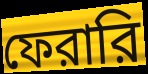
ফেরারি